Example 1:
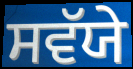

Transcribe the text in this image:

ਸਵੱਯੇ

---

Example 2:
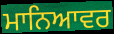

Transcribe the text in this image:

ਮਾਨਿਆਵਰ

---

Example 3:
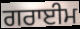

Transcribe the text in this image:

ਗਰਾਈਮ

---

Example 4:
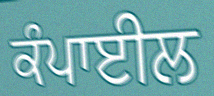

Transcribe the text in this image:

ਕੰਪਾਈਲ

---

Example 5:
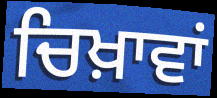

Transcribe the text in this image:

ਚਿਖ਼ਾਵਾਂ